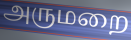
அருமறை